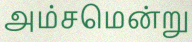
அம்சமென்று